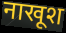
नाखूश